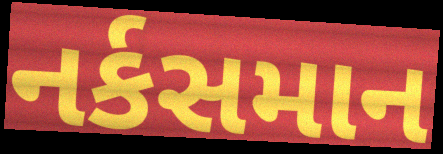
નર્કસમાન